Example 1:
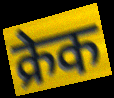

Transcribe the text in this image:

क्रेक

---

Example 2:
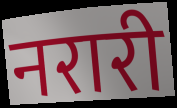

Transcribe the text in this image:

नरारी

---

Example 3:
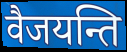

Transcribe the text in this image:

वैजयन्ति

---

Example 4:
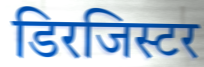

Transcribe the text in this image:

डिरजिस्टर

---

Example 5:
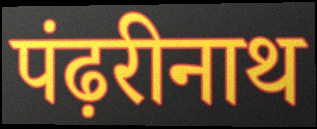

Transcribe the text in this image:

पंढ़रीनाथ